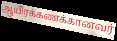
ஆயிரக்கணக்கானவர்